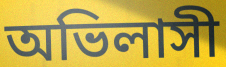
অভিলাসী